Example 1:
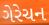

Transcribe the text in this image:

ગેરેચન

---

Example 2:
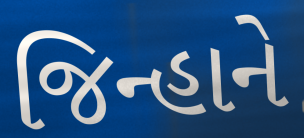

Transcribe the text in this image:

જિન્હાને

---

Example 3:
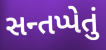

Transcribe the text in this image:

સન્તપ્પેતું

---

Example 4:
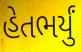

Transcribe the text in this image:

હેતભર્યું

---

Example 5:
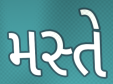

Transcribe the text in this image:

મસ્તે